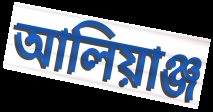
আলিয়াঞ্জ